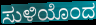
ಸುಳಿಯೊಂದ